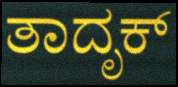
ತಾದೃಕ್